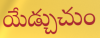
యేడ్చుచుం